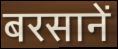
बरसानें